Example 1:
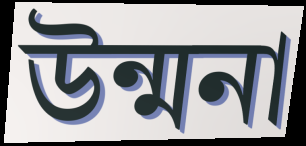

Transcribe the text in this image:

উন্মনা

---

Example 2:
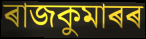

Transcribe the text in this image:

ৰাজকুমাৰৰ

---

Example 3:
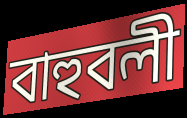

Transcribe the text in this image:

বাহুবলী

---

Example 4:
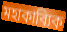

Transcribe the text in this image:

মহাকাব্যিক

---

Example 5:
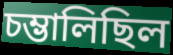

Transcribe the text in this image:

চম্ভালিছিল